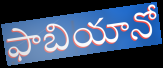
ఫాబియానో